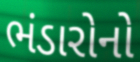
ભંડારોનો